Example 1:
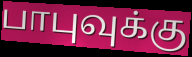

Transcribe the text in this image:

பாபுவுக்கு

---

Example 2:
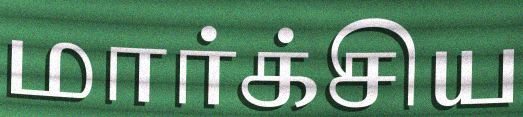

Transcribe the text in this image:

மார்க்சிய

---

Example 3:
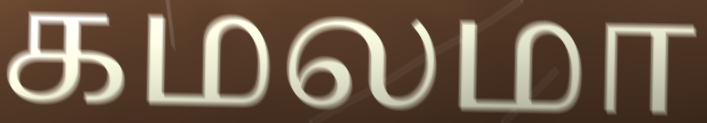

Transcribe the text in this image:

கமலமா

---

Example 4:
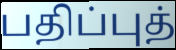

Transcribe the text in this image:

பதிப்புத்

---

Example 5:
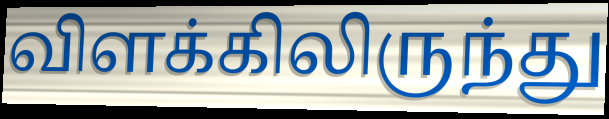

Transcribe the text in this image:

விளக்கிலிருந்து